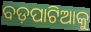
ବଡ଼ପାଟିଆକୁ